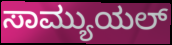
ಸಾಮ್ಯುಯಲ್